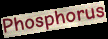
Phosphorus